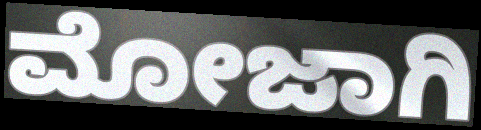
ಮೋಜಾಗಿ